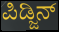
ಪಿಡ್ಜಿನ್